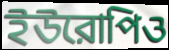
ইউরোপিও